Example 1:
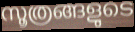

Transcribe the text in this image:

സൂത്രങ്ങളുടെ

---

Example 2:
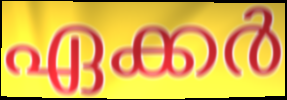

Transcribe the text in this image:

ഏക്കർ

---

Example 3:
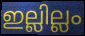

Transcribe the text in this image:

ഇല്ലില്ലം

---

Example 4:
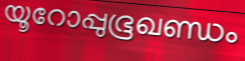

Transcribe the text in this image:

യൂറോപ്പുഭൂഖണ്ഡം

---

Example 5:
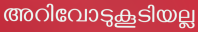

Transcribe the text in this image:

അറിവോടുകൂടിയല്ല